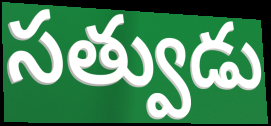
సత్వుడు